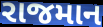
રાજમાન